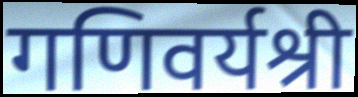
गणिवर्यश्री